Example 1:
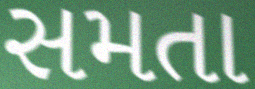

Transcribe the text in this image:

સમતા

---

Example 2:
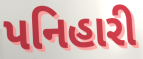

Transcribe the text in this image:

પનિહારી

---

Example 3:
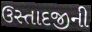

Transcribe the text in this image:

ઉસ્તાદજીની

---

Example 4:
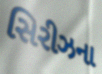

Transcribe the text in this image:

સિરીઝના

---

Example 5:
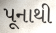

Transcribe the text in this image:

પૂનાથી